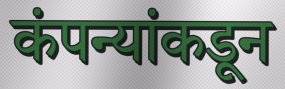
कंपन्यांकडून